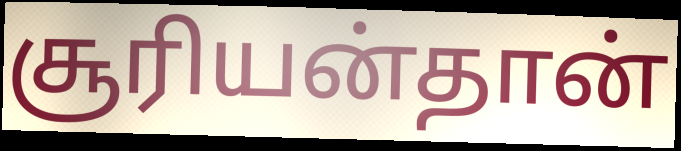
சூரியன்தான்